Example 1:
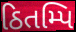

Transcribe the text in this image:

ઠિતમ્પિ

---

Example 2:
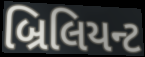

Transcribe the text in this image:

બ્રિલિયન્ટ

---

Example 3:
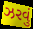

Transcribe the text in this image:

ઝરવું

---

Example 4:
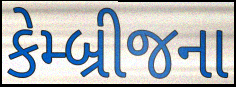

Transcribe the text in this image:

કેમ્બ્રીજના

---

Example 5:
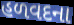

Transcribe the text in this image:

હળવદના